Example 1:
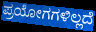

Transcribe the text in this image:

ಪ್ರಯೋಗಗಳಿಲ್ಲದೆ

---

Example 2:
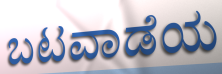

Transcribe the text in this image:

ಬಟವಾಡೆಯ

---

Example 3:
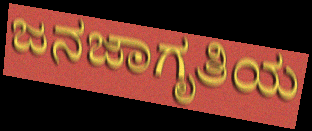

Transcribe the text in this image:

ಜನಜಾಗೃತಿಯ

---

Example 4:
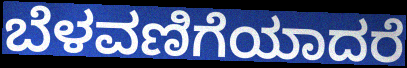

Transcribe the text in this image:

ಬೆಳವಣಿಗೆಯಾದರೆ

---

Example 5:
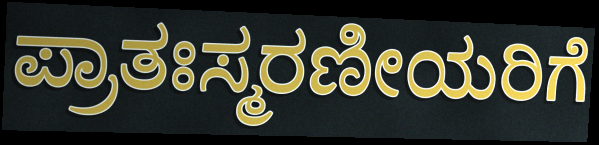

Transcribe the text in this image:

ಪ್ರಾತಃಸ್ಮರಣೀಯರಿಗೆ